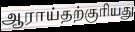
ஆராய்தற்குரியது